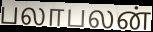
பலாபலன்